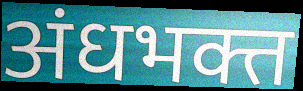
अंधभक्त